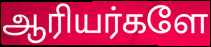
ஆரியர்களே